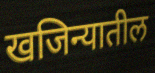
खजिन्यातील